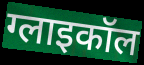
ग्लाइकॉल